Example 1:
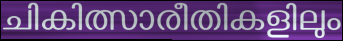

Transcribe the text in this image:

ചികിത്സാരീതികളിലും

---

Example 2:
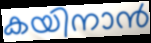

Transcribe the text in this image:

കയിനാൻ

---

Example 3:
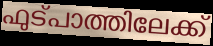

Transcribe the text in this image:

ഫുട്പാത്തിലേക്ക്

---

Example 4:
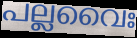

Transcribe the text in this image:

പല്ലവൈഃ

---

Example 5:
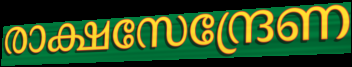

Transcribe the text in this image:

രാക്ഷസേന്ദ്രേണ